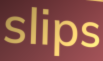
slips